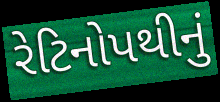
રેટિનોપથીનું